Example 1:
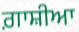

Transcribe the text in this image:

ਗ਼ਾਸ਼ੀਆ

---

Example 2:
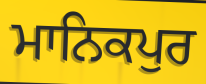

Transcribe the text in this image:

ਮਾਨਿਕਪੁਰ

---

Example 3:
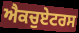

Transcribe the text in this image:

ਐਕਚੁਏਟਰਸ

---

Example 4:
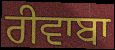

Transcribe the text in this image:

ਰੀਵਾਬਾ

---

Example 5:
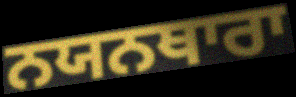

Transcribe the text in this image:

ਨਯਨਥਾਰਾ